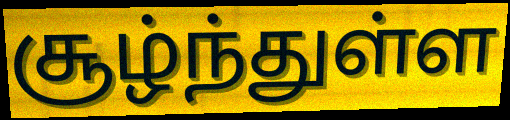
சூழ்ந்துள்ள